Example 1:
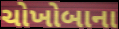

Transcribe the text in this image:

ચોખોબાના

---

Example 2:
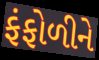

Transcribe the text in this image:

ફંફોળીને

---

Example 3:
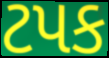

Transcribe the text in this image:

ટપક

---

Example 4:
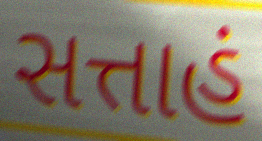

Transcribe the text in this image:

સત્તાહં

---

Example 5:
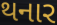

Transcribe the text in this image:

થનાર